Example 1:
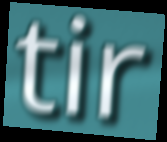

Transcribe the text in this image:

tir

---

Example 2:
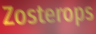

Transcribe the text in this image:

Zosterops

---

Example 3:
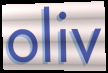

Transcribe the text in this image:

oliv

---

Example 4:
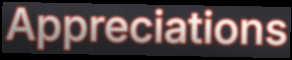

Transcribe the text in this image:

Appreciations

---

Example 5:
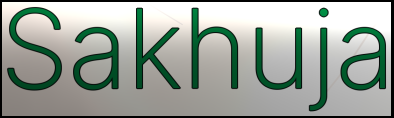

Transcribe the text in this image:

Sakhuja